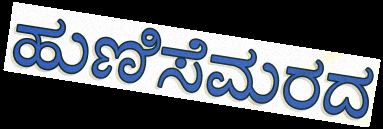
ಹುಣಿಸೆಮರದ